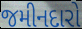
જમીનદારો